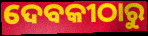
ଦେବକୀଠାରୁ